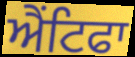
ਐਂਟਿਫਾ